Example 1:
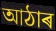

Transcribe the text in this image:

আঠাৰ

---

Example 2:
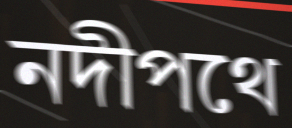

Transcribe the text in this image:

নদীপথে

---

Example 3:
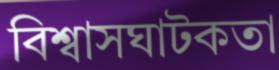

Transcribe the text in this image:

বিশ্বাসঘাটকতা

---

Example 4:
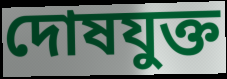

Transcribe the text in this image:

দোষযুক্ত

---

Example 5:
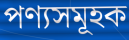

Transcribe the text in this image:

পণ্যসমূহক